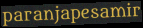
paranjapesamir